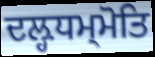
ਦਲ਼੍ਹਧਮ੍ਮੋਤਿ